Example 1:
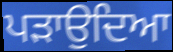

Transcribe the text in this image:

ਪੜਾਉਦਿਆ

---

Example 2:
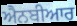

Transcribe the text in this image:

ਐਨਬੀਆਰ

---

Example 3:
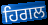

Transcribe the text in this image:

ਹਿਗਲ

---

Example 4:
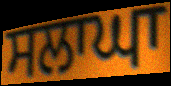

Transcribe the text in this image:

ਸਲਾਘਾ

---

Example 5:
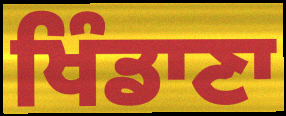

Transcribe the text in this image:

ਖਿੰਡਾਣਾ